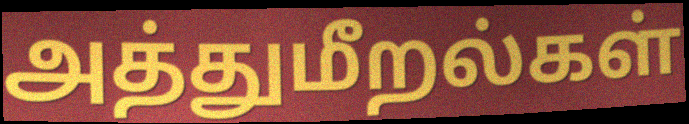
அத்துமீறல்கள்